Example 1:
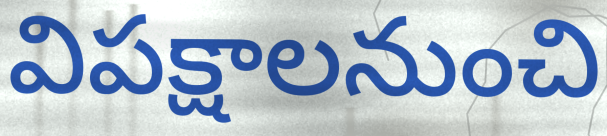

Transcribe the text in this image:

విపక్షాలనుంచి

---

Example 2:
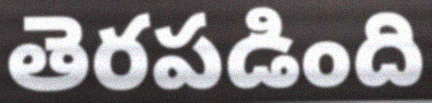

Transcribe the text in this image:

తెరపడింది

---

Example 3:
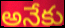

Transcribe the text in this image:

అనేకు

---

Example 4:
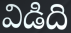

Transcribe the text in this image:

విడిది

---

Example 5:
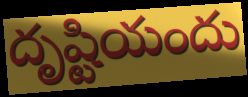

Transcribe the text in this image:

దృష్టియందు